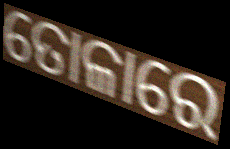
ତୋଳାରେ